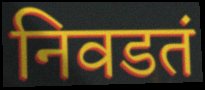
निवडतं